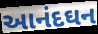
આનંદઘન